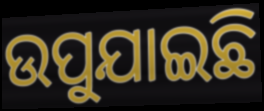
ଉପୁଯାଇଛି